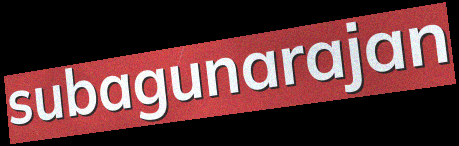
subagunarajan